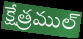
క్షేత్రముల్